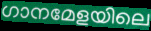
ഗാനമേളയിലെ